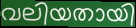
വലിയതായി